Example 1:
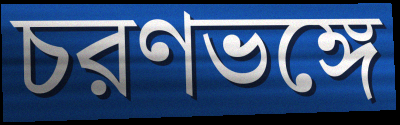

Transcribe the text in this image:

চরণভঙ্গে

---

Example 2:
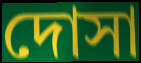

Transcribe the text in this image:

দোসা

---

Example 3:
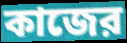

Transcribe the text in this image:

কাজের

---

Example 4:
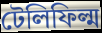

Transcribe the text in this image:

টেলিফিল্ম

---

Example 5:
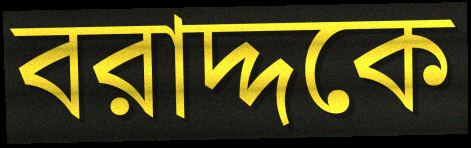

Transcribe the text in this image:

বরাদ্দকে